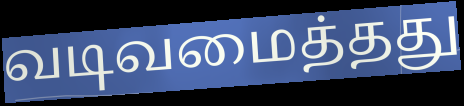
வடிவமைத்தது